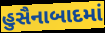
હુસૈનાબાદમાં